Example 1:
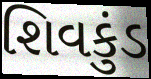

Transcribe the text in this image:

શિવકુંડ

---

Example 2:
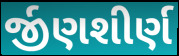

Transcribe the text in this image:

ર્જીણશીર્ણ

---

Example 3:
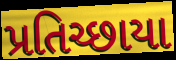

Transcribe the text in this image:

પ્રતિચ્છાયા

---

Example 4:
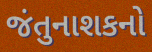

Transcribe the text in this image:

જંતુનાશકનો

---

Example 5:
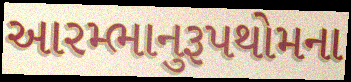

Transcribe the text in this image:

આરમ્ભાનુરૂપથોમના